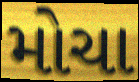
મોચા